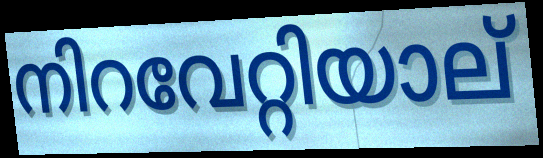
നിറവേറ്റിയാല്